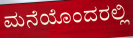
ಮನೆಯೊಂದರಲ್ಲಿ